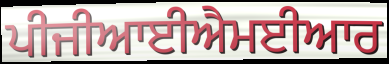
ਪੀਜੀਆਈਐਮਈਆਰ